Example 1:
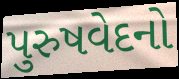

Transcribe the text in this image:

પુરુષવેદનો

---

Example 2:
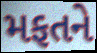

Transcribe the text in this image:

મફતને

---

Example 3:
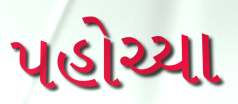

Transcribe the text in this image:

પહોચ્યા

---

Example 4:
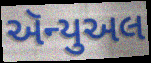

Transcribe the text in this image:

ઍન્યુઅલ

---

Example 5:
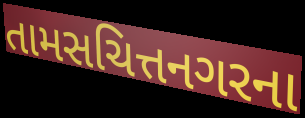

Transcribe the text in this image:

તામસચિત્તનગરના